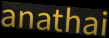
anathai